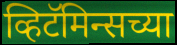
व्हिटॅमिन्सच्या